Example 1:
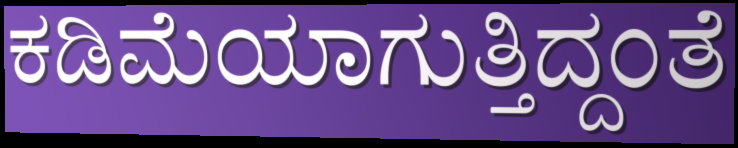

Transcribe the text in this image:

ಕಡಿಮೆಯಾಗುತ್ತಿದ್ದಂತೆ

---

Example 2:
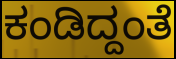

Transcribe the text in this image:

ಕಂಡಿದ್ದಂತೆ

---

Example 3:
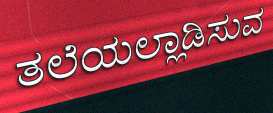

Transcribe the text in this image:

ತಲೆಯಲ್ಲಾಡಿಸುವ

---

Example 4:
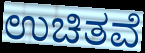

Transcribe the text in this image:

ಉಚಿತವೆ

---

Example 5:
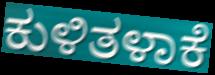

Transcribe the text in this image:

ಕುಳಿತಳಾಕೆ